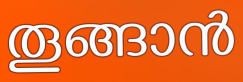
തൂങ്ങാൻ